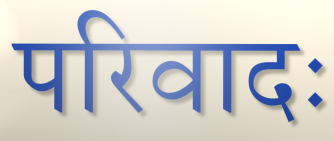
परिवादः